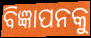
ବିଜ୍ଞାପନକୁ